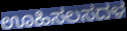
ಊಹಿಸಲಸದಳ